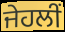
ਜੇਹਲੀਂ